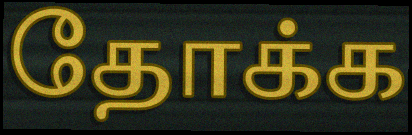
தோக்க